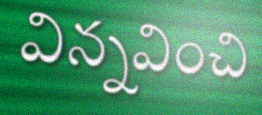
విన్నవించి